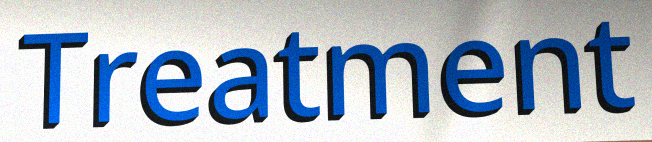
Treatment